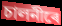
চালনীৰে